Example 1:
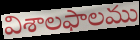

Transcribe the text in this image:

విశాలఫాలము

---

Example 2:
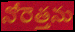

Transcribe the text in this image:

నోరెత్తను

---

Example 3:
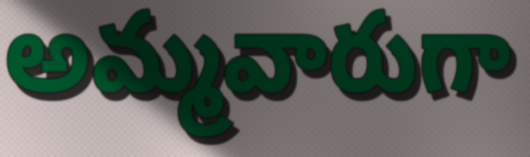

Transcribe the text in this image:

అమ్మవారుగా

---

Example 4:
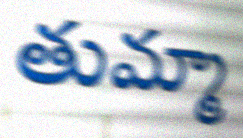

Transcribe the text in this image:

తుమ్మా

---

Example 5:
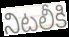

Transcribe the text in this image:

నిటలీకి